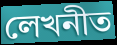
লেখনীত